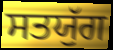
ਸਤਯੁੱਗ